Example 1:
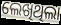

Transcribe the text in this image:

ଲେଖିଥିଲା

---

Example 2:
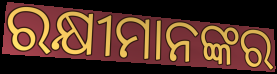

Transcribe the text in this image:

ରକ୍ଷୀମାନଙ୍କର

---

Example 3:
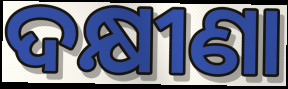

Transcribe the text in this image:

ଦକ୍ଷୀଣା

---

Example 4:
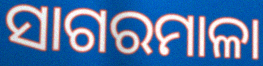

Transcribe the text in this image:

ସାଗରମାଳା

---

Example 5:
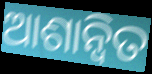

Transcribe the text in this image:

ଆଶାନ୍ବିତ